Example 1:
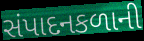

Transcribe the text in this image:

સંપાદનકળાની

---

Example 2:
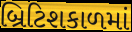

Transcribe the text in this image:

બ્રિટિશકાળમાં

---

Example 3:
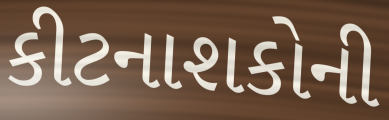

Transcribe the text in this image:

કીટનાશકોની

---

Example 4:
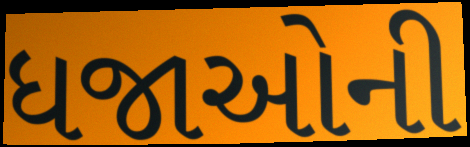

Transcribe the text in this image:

ધજાઓની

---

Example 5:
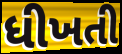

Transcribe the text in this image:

ધીખતી